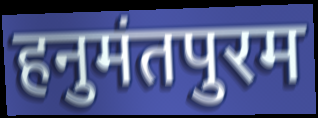
हनुमंतपुरम